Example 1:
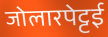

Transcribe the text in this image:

जोलारपेट्टई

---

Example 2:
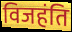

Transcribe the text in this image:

विजहंति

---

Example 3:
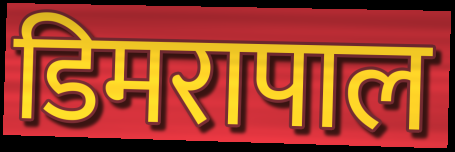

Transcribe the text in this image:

डिमरापाल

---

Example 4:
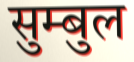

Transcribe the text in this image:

सुम्बुल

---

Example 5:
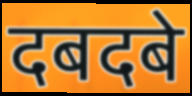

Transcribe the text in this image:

दबदबे